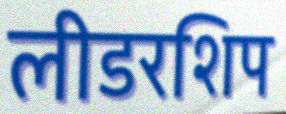
लीडरशिप